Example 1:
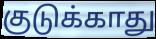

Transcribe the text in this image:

குடுக்காது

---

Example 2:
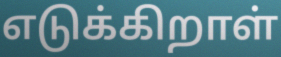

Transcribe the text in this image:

எடுக்கிறாள்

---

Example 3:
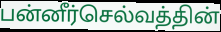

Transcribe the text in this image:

பன்னீர்செல்வத்தின்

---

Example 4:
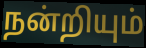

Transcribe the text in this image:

நன்றியும்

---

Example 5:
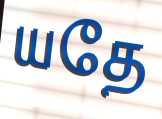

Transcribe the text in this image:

யதே